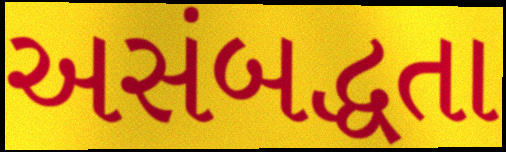
અસંબદ્ધતા